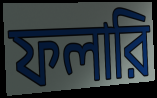
ফলারি